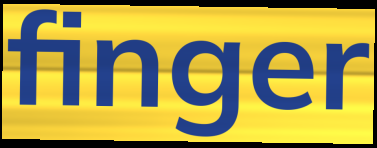
finger